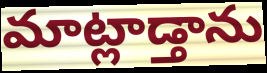
మాట్లాడ్తాను